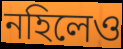
নহিলেও